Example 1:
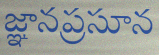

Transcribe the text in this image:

జ్ఞానప్రసూన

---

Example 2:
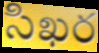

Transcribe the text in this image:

సిఖర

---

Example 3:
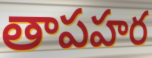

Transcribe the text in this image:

తాపహర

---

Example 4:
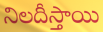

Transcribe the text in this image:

నిలదీస్తాయి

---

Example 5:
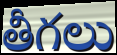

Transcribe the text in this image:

తీగలు